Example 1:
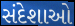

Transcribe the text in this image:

સંદેશાઓ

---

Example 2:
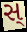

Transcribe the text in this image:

સ્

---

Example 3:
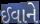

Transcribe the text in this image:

ઈવાને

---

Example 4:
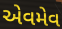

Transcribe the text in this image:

એવમેવ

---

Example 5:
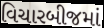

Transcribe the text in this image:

વિચારબીજમાં